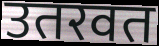
उतरवत